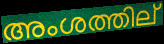
അംശത്തില്